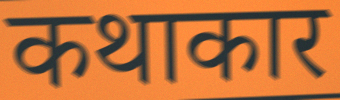
कथाकार